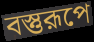
বস্তুরূপে